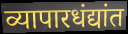
व्यापारधंद्यांत